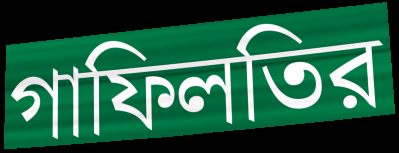
গাফিলতির